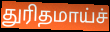
துரிதமாய்ச்